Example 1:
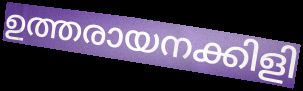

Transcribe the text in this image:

ഉത്തരായനക്കിളി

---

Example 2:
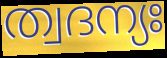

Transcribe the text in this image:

ത്വദന്യഃ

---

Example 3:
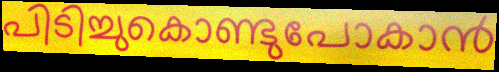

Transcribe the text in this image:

പിടിച്ചുകൊണ്ടുപോകാൻ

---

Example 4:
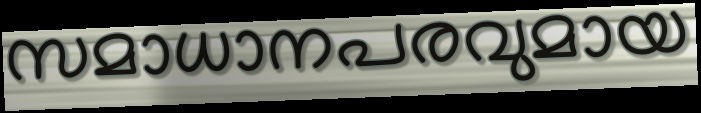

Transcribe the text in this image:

സമാധാനപരവുമായ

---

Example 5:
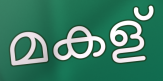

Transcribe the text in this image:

മകള്